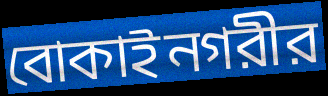
বোকাইনগরীর